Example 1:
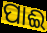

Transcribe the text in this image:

ପାଈ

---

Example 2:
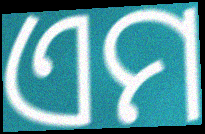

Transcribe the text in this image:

ଏମ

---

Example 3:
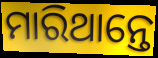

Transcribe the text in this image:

ମାରିଥାନ୍ତେ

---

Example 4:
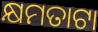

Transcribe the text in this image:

କ୍ଷମତାଟା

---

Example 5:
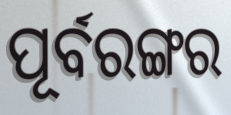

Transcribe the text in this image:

ପୂର୍ବରଙ୍ଗର